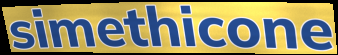
simethicone